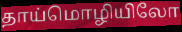
தாய்மொழியிலோ